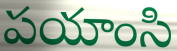
పయాంసి